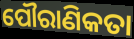
ପୌରାଣିକତା